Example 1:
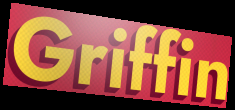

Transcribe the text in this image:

Griffin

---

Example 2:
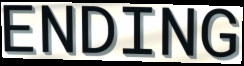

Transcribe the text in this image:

ENDING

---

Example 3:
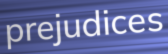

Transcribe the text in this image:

prejudices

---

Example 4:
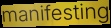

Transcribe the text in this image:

manifesting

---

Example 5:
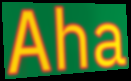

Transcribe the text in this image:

Aha